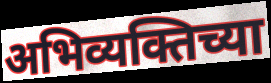
अभिव्यक्तिच्या